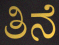
ತಿನೆ